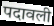
पदावली